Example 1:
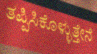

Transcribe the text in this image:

ತಪ್ಪಿಸಿಕೊಳ್ಳುತ್ತೇನೆ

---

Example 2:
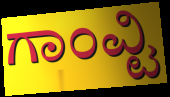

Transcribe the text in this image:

ಗಾಂವ್ಟಿ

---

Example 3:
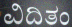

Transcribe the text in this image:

ವಿದಿತಂ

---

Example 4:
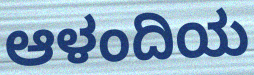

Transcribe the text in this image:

ಆಳಂದಿಯ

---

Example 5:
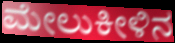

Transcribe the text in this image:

ಮೇಲುಕೀಳಿನ